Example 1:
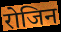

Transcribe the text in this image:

रोजिन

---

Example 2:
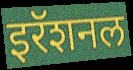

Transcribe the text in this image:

इरॅशनल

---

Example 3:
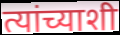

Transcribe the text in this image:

त्यांच्याशी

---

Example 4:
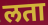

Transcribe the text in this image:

लता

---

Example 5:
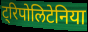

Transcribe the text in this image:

ट्रिपोलिटेनिया